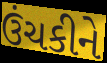
ઉંચકીને